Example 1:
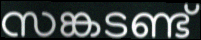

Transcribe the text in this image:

സങ്കടണ്ട്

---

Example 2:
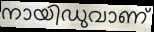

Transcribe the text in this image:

നായിഡുവാണ്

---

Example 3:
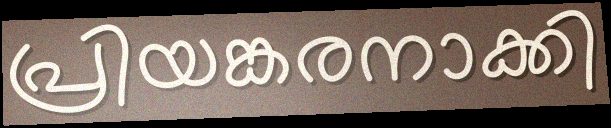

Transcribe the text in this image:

പ്രിയങ്കരനാക്കി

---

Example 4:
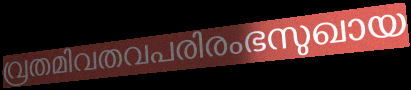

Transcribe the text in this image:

വ്രതമിവതവപരിരംഭസുഖായ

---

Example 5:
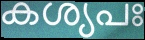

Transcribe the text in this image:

കശ്യപഃ